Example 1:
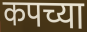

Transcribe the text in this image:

कपच्या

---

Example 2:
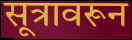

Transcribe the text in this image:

सूत्रावरून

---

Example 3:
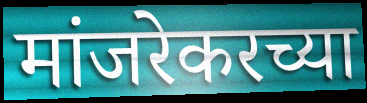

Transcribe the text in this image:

मांजरेकरच्या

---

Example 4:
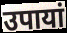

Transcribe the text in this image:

उपायां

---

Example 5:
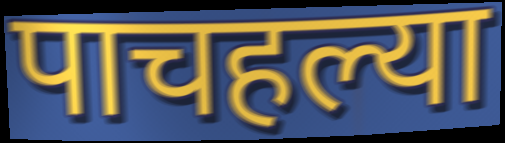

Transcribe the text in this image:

पाचहल्या